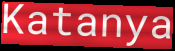
Katanya